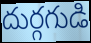
దుర్గగుడి